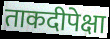
ताकदीपेक्षा